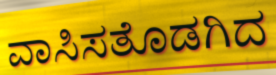
ವಾಸಿಸತೊಡಗಿದ